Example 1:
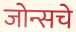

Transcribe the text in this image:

जोन्सचे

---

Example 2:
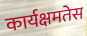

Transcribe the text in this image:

कार्यक्षमतेस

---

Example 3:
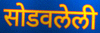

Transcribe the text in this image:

सोडवलेली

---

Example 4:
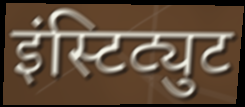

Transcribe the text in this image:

इंस्टिट्युट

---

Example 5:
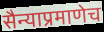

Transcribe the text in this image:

सैन्याप्रमाणेच